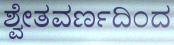
ಶ್ವೇತವರ್ಣದಿಂದ